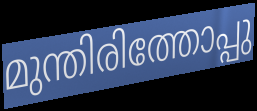
മുന്തിരിത്തോപ്പു